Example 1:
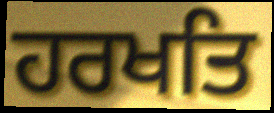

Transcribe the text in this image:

ਹਰਖਤਿ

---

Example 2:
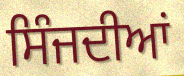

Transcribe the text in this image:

ਸਿੰਜਦੀਆਂ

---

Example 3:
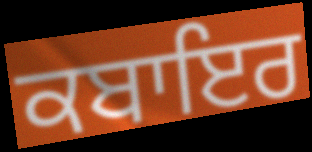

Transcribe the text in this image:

ਕਬਾਇਰ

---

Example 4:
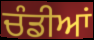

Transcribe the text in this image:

ਚੰਡੀਆਂ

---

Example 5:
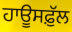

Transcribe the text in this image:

ਹਾਊਸਫ਼ੁੱਲ